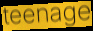
teenage